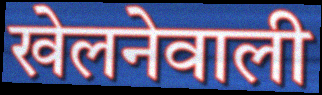
खेलनेवाली